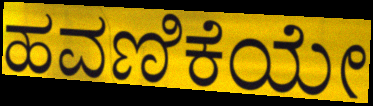
ಹವಣಿಕೆಯೇ